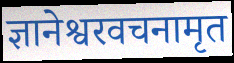
ज्ञानेश्वरवचनामृत